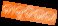
କାକୁତିଭରା